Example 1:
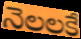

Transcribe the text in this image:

నెలలకే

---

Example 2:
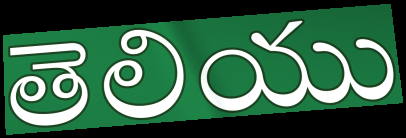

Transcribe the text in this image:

తెలియు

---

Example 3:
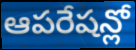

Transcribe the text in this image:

ఆపరేషన్లో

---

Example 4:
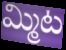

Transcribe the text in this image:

మ్మిట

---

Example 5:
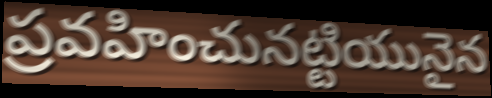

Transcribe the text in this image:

ప్రవహించునట్టియునైన